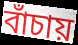
বাঁচায়